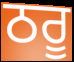
ਠਰੂ